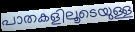
പാതകളിലൂടെയുള്ള